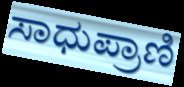
ಸಾಧುಪ್ರಾಣಿ